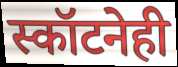
स्कॉटनेही